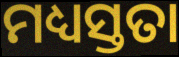
ମଧ୍ୟସ୍ତତା